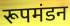
रूपमंडन